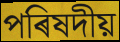
পৰিষদীয়